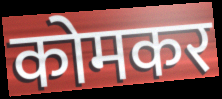
कोमकर